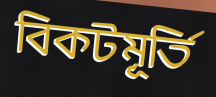
বিকটমূর্তি